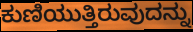
ಕುಣಿಯುತ್ತಿರುವುದನ್ನು